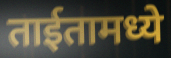
ताईतामध्ये